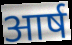
आर्ष